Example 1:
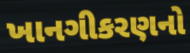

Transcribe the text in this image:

ખાનગીકરણનો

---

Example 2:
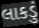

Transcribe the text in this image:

લાકડું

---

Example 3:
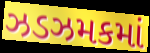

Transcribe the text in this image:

ઝડઝમકમાં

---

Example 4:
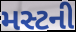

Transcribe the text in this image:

મસ્ટની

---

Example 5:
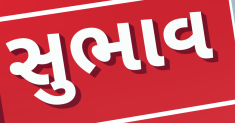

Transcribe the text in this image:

સુભાવ